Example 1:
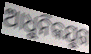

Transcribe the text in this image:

ଆଧୁନିକଯୁଗ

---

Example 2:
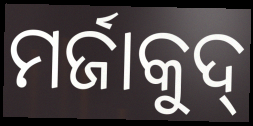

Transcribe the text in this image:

ମର୍ଜାକୁଦ୍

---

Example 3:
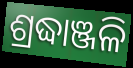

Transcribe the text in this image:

ଶ୍ରଦ୍ଧାଞ୍ଜଳି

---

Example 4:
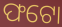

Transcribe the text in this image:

ଫଟୋ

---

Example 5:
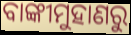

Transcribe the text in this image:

ବାଙ୍କୀମୁହାଣରୁ